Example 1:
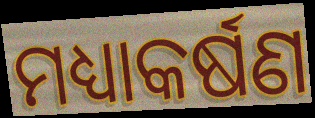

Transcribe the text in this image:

ମଧ୍ୟାକର୍ଷଣ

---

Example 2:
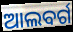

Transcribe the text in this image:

ଆଲବର୍ଗ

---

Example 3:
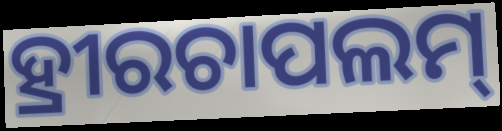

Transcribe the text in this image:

ହ୍ରୀରଚାପଲମ୍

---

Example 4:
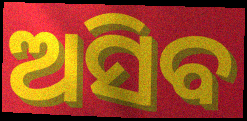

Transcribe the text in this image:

ଅସିବ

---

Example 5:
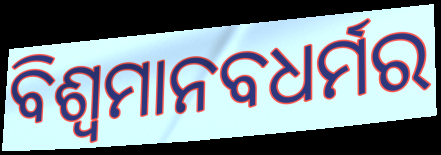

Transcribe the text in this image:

ବିଶ୍ବମାନବଧର୍ମର